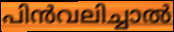
പിൻവലിച്ചാൽ